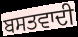
ਬਸਤਵਾਦੀ